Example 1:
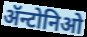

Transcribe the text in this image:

ॲन्टोनिओ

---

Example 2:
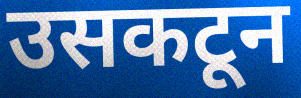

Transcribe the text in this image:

उसकटून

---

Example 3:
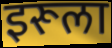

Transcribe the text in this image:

इरूला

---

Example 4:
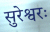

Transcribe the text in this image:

सुरेश्वरः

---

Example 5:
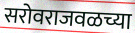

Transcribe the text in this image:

सरोवराजवळच्या